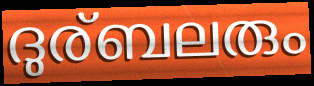
ദുര്ബലരും